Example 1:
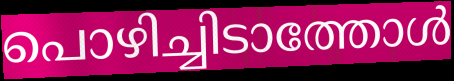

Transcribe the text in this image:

പൊഴിച്ചിടാത്തോൾ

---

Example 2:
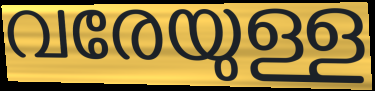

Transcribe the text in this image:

വരേയുള്ള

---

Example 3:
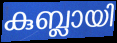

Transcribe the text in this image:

കുബ്ലായി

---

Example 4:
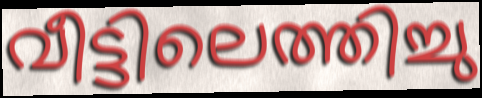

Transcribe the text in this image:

വീട്ടിലെത്തിച്ചു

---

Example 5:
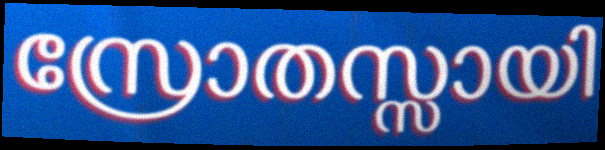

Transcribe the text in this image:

സ്രോതസ്സായി